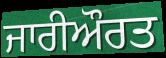
ਜਾਰੀਔਰਤ